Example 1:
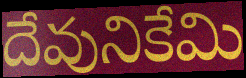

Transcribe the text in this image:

దేవునికేమి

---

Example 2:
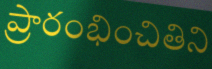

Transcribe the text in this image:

ప్రారంభించితిని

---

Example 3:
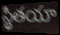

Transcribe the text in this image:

స్థితయా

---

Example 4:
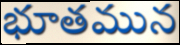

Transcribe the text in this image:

భూతమున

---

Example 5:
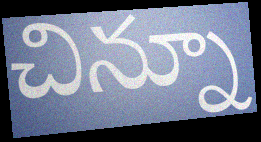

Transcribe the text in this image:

చిన్నూ